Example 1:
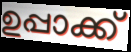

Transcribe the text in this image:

ഉപ്പാക്ക്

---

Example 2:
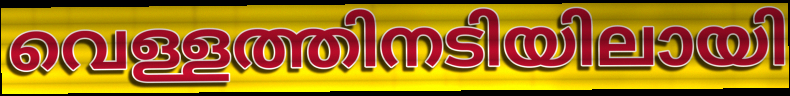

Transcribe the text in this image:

വെള്ളത്തിനടിയിലായി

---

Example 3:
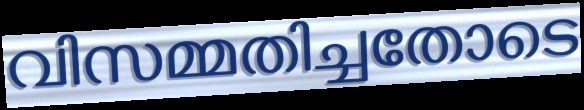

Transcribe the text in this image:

വിസമ്മതിച്ചതോടെ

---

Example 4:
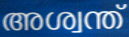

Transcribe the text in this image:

അശ്വന്ത്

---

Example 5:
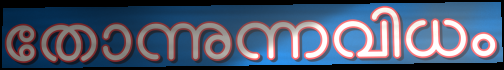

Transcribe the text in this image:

തോന്നുന്നവിധം